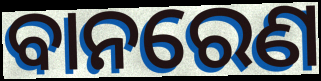
ବାନରେଣ